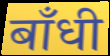
बाँधी